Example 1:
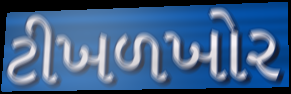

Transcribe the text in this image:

ટીખળખોર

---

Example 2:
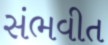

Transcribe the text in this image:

સંભવીત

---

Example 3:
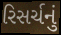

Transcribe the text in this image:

રિસર્ચનું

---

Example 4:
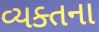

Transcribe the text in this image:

વ્યક્તના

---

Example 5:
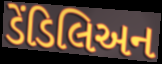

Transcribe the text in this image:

ડેંડિલિઅન